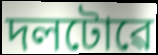
দলটোৱে